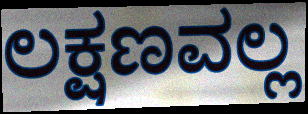
ಲಕ್ಷಣವಲ್ಲ